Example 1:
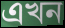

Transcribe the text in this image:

এখন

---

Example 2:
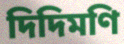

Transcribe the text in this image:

দিদিমণি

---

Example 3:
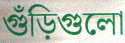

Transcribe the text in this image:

গুঁড়িগুলো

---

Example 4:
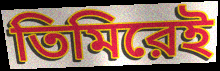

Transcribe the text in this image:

তিমিরেই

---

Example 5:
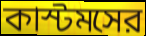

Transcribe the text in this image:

কাস্টমসের